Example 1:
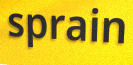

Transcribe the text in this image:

sprain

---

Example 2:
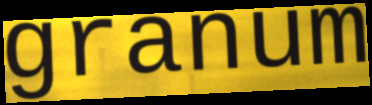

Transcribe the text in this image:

granum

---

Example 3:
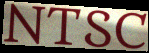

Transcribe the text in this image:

NTSC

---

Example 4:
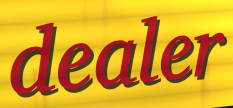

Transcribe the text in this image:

dealer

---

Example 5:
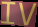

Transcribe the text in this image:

IV